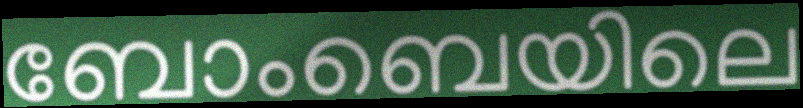
ബോംബെയിലെ